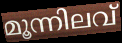
മൂന്നിലവ്